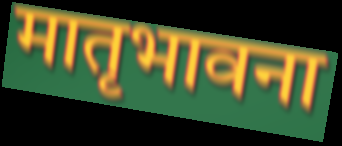
मातृभावना